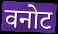
वनोट